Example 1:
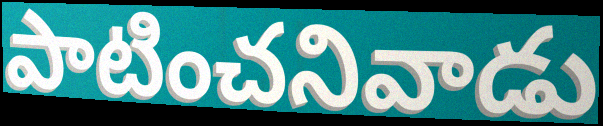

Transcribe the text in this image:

పాటించనివాడు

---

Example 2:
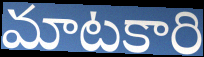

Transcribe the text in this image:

మాటకారి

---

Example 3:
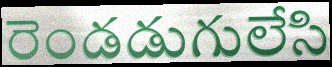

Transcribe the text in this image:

రెండడుగులేసి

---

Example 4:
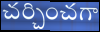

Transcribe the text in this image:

చర్చించగా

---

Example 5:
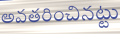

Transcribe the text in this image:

అవతరించినట్టు